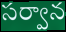
సర్వాన